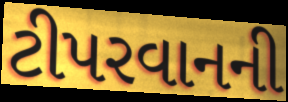
ટીપરવાનની